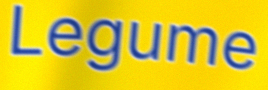
Legume